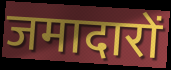
जमादारों